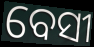
ବେସୀ